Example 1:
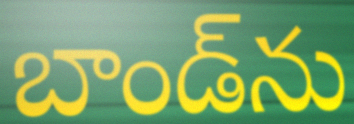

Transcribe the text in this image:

బాండ్‌ను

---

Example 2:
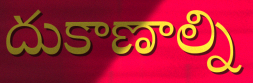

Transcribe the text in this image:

దుకాణాల్ని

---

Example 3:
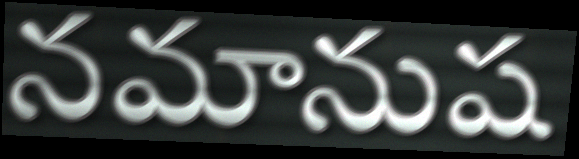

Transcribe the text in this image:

నమానుష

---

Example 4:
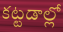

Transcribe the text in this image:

కట్టడాల్లో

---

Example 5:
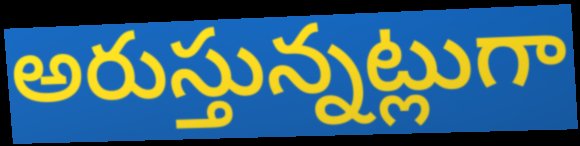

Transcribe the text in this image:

అరుస్తున్నట్లుగా